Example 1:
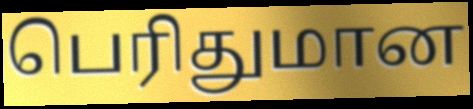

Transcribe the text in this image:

பெரிதுமான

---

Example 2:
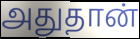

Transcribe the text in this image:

அதுதான்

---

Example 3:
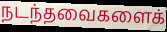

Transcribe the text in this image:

நடந்தவைகளைக்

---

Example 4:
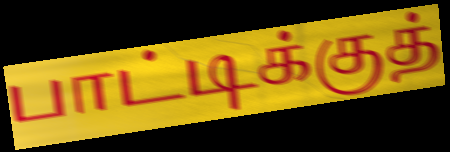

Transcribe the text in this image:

பாட்டிக்குத்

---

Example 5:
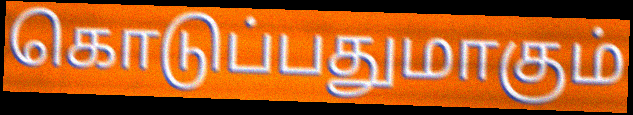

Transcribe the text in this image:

கொடுப்பதுமாகும்